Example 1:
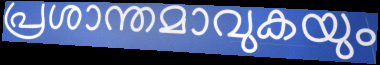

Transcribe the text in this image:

പ്രശാന്തമാവുകയും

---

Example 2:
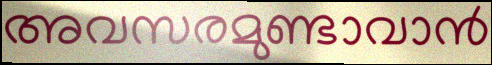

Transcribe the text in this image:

അവസരമുണ്ടാവാൻ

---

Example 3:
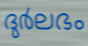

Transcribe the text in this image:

ദുർലഭം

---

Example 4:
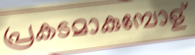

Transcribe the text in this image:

പ്രകടമാകുമ്പോള്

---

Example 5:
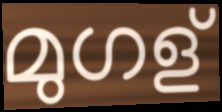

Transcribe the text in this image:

മുഗള്